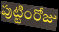
పుట్టింరోజు